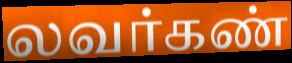
லவர்கண்